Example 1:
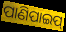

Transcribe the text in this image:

ପାଣିପାଇପ୍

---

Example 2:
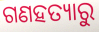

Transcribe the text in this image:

ଗଣହତ୍ୟାରୁ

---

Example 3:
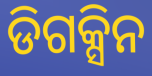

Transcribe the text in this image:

ଡିଗକ୍ସିନ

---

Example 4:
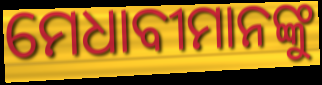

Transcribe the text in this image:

ମେଧାବୀମାନଙ୍କୁ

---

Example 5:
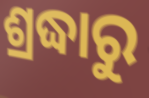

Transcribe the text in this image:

ଶ୍ରଦ୍ଧାରୁ